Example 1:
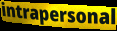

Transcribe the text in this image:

intrapersonal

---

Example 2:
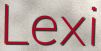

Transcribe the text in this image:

Lexi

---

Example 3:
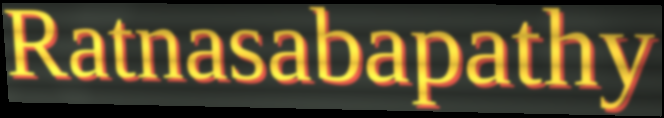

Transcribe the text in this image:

Ratnasabapathy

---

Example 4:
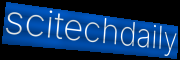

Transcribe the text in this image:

scitechdaily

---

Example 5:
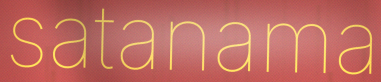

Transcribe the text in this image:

satanama